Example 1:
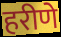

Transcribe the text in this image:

हरीणे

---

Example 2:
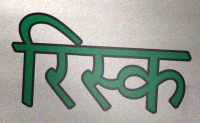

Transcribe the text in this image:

रिस्क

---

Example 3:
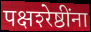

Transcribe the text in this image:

पक्षश्रेष्ठींना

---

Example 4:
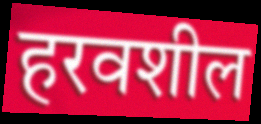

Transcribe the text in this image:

हरवशील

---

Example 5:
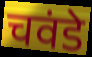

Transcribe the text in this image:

चवंडे